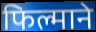
फिल्माने